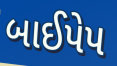
બાઈપેપ